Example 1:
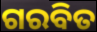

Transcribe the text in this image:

ଗରବିତ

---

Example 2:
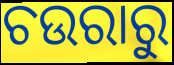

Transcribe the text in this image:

ଚଉରାରୁ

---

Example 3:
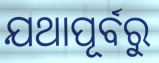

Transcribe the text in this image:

ଯଥାପୂର୍ବରୁ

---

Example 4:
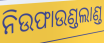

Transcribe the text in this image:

ନିଉଫାଉଣ୍ଡଲାଣ୍ଡ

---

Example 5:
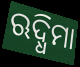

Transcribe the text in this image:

ଋଦ୍ଧିମା